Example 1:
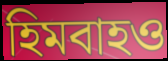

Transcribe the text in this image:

হিমবাহও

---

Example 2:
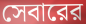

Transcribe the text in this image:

সেবারের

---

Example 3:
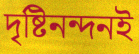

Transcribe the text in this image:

দৃষ্টিনন্দনই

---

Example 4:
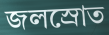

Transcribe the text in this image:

জলস্রোত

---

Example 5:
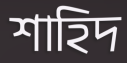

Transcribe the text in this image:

শাহিদ